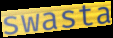
swasta